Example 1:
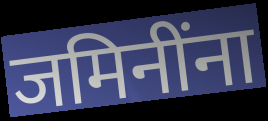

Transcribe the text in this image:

जमिनींना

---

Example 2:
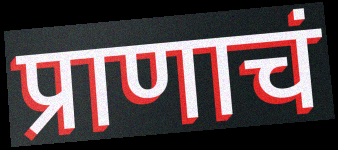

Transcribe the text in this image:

प्राणाचं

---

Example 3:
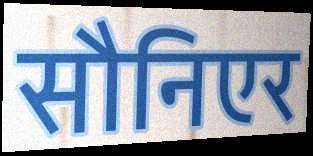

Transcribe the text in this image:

सौनिएर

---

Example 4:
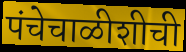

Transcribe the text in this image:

पंचेचाळीशीची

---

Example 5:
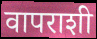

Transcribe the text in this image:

वापराशी